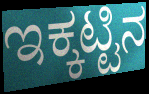
ಇಕ್ಕಟ್ಟಿನ